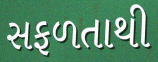
સફળતાથી